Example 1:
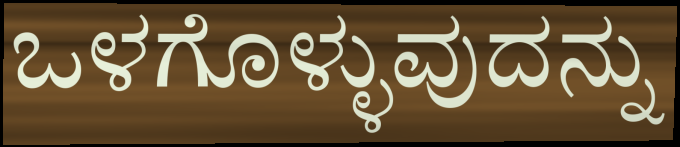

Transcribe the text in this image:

ಒಳಗೊಳ್ಳುವುದನ್ನು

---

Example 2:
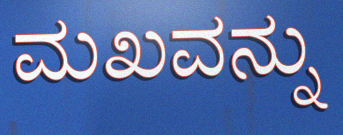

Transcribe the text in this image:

ಮಖವನ್ನು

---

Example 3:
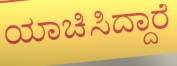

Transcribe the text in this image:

ಯಾಚಿಸಿದ್ದಾರೆ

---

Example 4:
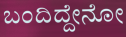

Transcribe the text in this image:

ಬಂದಿದ್ದೇನೋ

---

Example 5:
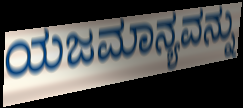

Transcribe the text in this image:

ಯಜಮಾನ್ಯವನ್ನು